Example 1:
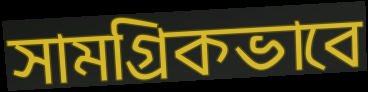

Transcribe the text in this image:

সামগ্ৰিকভাবে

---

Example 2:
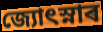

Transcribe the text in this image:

জ্যোৎস্নাৰ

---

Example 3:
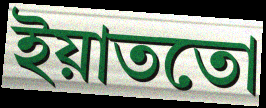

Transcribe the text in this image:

ইয়াততো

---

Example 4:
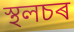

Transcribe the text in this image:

স্থলচৰ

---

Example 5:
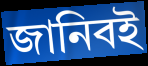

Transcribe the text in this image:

জানিবই